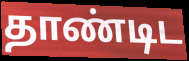
தாண்டிட